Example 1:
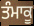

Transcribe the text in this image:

ਤੰਮਾਕੂ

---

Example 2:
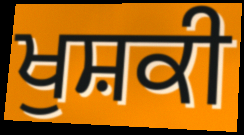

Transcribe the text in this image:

ਖੁਸ਼ਕੀ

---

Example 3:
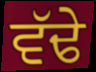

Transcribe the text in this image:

ਵੱਢੇ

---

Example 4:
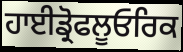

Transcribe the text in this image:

ਹਾਈਡ੍ਰੋਫਲੂਓਰਿਕ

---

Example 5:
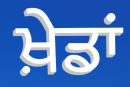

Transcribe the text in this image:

ਖ਼ੇਡਾਂ